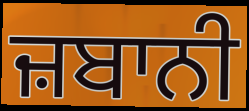
ਜ਼ਬਾਨੀ